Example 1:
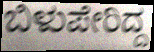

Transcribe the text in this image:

ಬಿಳುಪೇರಿದ್ದ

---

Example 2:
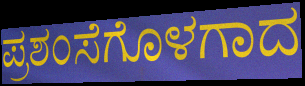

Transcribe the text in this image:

ಪ್ರಶಂಸೆಗೊಳಗಾದ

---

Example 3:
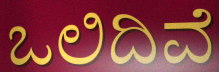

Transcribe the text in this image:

ಒಲಿದಿವೆ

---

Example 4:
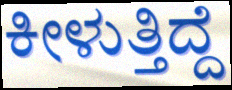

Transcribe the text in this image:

ಕೀಳುತ್ತಿದ್ದೆ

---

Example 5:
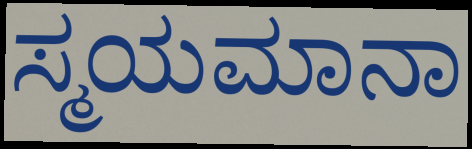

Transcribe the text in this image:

ಸ್ಮಯಮಾನಾ